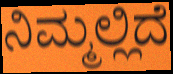
ನಿಮ್ಮಲ್ಲಿದೆ